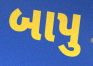
બાપુ